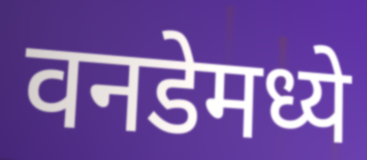
वनडेमध्ये